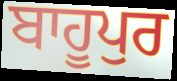
ਬਾਹੂਪੁਰ